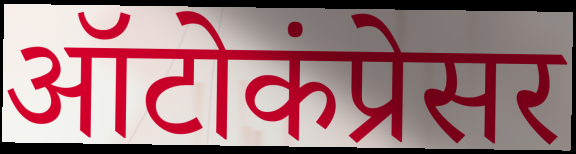
ऑटोकंप्रेसर